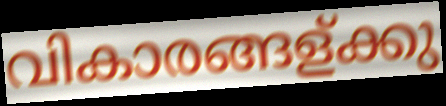
വികാരങ്ങള്ക്കു